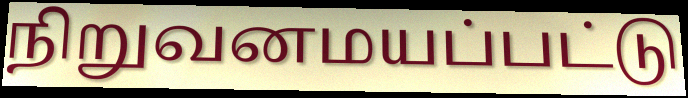
நிறுவனமயப்பட்டு